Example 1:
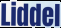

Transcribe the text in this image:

Liddel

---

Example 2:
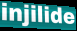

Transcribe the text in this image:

injilide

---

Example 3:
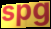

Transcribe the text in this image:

spg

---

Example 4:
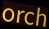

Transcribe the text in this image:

orch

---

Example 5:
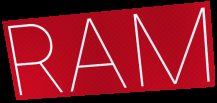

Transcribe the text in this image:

RAM